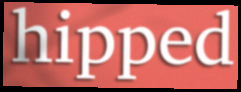
hipped